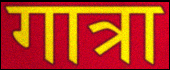
गात्रा